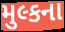
મુલ્કના